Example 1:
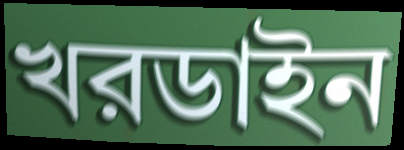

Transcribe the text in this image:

খরডাইন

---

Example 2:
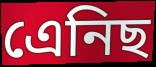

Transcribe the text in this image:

এেনিছ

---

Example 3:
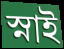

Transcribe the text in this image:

স্নাই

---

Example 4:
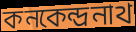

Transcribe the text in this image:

কনকেন্দ্রনাথ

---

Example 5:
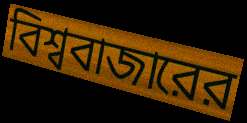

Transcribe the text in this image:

বিশ্ববাজারের